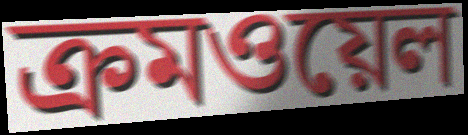
ক্রমওয়েল